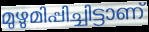
മുഴുമിപ്പിച്ചിട്ടാണ്